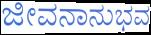
ಜೀವನಾನುಭವ